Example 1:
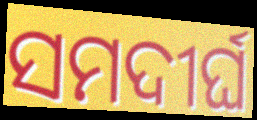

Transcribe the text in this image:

ସମଦୀର୍ଘ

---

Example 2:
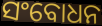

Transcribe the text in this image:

ସଂବୋଧନ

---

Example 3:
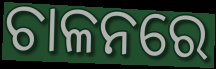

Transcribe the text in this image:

ଚାଳନରେ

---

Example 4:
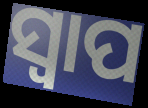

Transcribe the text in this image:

ସ୍ବାପ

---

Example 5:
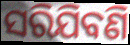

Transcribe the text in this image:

ସରିଯିବଣି